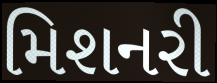
મિશનરી